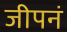
जीपनं